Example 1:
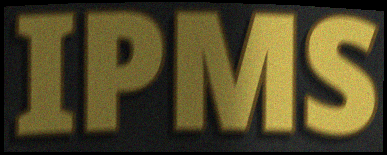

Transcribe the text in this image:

IPMS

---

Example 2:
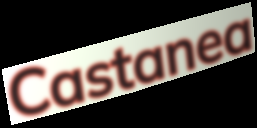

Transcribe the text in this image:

Castanea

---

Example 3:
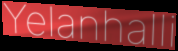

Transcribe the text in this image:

Yelanhalli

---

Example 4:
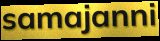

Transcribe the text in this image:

samajanni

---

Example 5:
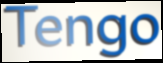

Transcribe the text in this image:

Tengo